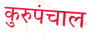
कुरुपंचाल